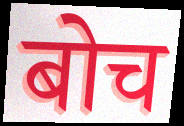
बोच